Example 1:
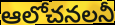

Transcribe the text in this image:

ఆలోచనలనీ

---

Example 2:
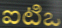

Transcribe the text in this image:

ఐటిఒ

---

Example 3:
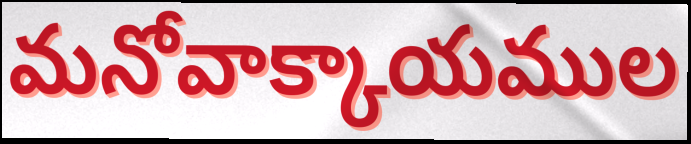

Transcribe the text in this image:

మనోవాక్కాయముల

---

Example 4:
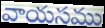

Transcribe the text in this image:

వాయసము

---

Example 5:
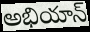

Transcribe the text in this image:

అభియాన్